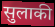
सुलाकी